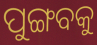
ପୁଙ୍ଗବକୁ